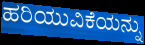
ಹರಿಯುವಿಕೆಯನ್ನು